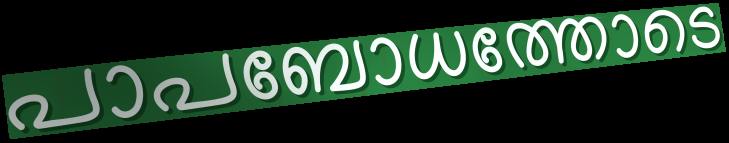
പാപബോധത്തോടെ